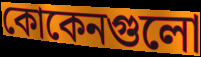
কোকেনগুলো